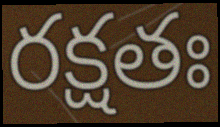
రక్షతః